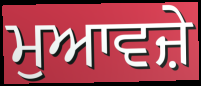
ਮੁਆਵਜ਼ੇ